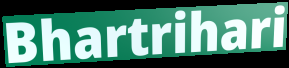
Bhartrihari